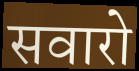
सवारो